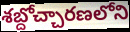
శబ్దోచ్చారణలోని